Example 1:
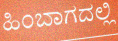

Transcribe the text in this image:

ಹಿಂಬಾಗದಲ್ಲಿ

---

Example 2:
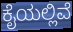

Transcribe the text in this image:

ಕೈಯಲ್ಲಿವೆ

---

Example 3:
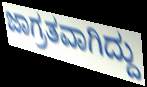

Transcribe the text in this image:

ಜಾಗ್ರತವಾಗಿದ್ದು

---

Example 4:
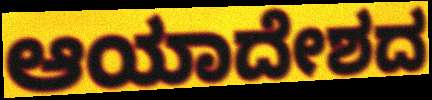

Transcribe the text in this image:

ಆಯಾದೇಶದ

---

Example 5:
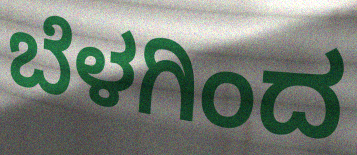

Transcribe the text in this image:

ಬೆಳಗಿಂದ